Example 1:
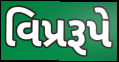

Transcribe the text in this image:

વિપ્રરૂપે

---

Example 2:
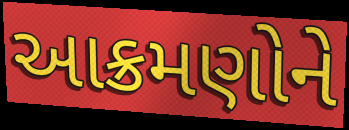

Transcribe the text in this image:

આક્રમણોને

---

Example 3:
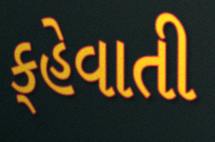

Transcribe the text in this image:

ક્‌હેવાતી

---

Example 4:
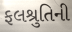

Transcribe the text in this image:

ફલશ્રુતિની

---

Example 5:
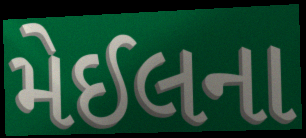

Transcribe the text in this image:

મેઈલના